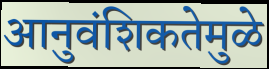
आनुवंशिकतेमुळे